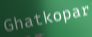
Ghatkopar